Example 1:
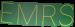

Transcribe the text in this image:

EMRS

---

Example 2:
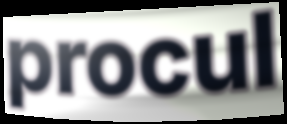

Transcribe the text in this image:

procul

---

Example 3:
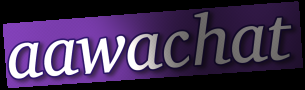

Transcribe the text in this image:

aawachat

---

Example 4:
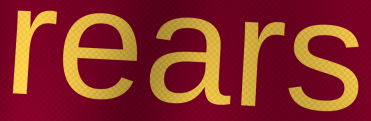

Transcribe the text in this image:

rears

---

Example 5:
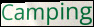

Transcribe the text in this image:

Camping